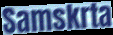
Samskrta